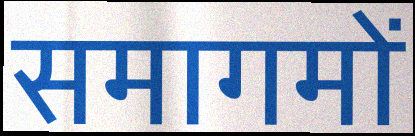
समागमों